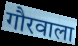
गौरवाला